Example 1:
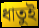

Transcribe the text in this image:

ধাতুই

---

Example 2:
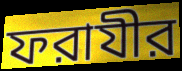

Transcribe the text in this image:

ফরাযীর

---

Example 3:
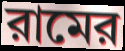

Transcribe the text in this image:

রামের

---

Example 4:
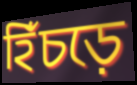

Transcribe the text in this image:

হিঁচড়ে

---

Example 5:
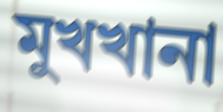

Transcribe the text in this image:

মুখখানা